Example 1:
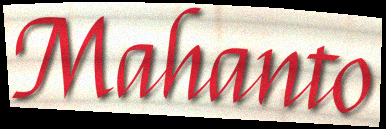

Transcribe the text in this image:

Mahanto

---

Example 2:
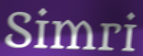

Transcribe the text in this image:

Simri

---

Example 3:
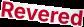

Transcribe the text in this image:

Revered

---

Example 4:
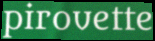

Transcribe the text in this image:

pirouette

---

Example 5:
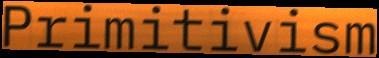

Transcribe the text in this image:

Primitivism